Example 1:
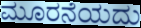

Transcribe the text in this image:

ಮೂರನೆಯದು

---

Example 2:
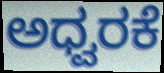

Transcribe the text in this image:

ಅಧ್ವರಕೆ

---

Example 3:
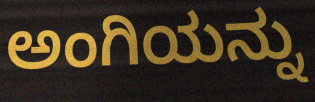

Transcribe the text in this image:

ಅಂಗಿಯನ್ನು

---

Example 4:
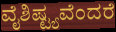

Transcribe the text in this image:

ವೈಶಿಷ್ಟ್ಯವೆಂದರೆ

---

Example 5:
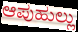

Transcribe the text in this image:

ಆಪುಹುಲ್ಲು